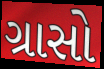
ગ્રાસો